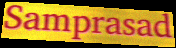
Samprasad